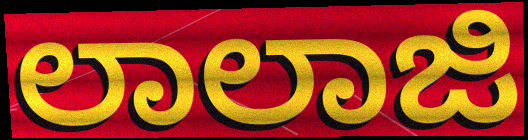
ಲಾಲಾಜಿ